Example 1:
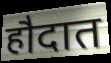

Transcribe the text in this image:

हौदात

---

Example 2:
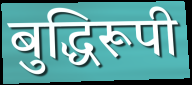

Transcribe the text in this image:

बुद्धिरूपी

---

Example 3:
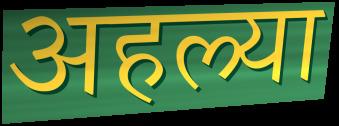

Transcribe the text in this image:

अहल्या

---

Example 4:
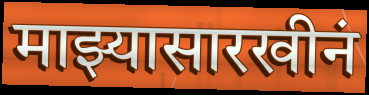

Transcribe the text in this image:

माझ्यासारखीनं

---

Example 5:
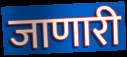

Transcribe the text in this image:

जाणारी